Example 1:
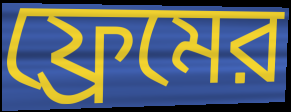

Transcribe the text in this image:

ফ্রেমের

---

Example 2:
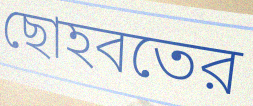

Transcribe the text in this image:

ছোহবতের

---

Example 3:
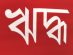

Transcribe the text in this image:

ঋদ্ধ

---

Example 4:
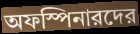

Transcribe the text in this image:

অফস্পিনারদের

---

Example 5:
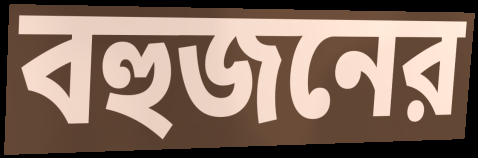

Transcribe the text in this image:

বহুজনের